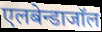
एलबेन्डाजॉल